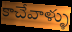
కాచేవాళ్ళు